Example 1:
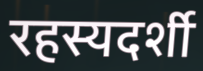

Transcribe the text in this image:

रहस्यदर्शी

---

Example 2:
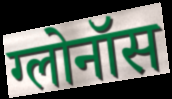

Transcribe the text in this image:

ग्लोनॉस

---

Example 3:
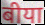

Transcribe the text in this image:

बीया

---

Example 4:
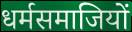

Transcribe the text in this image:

धर्मसमाजियों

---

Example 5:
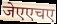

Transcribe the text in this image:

जेएएचए